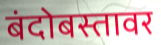
बंदोबस्तावर